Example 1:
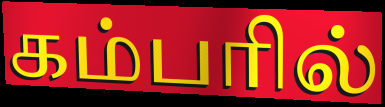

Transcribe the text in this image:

கம்பரில்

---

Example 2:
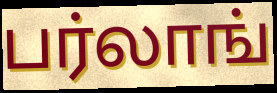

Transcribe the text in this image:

பர்லாங்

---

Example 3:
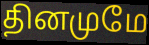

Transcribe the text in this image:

தினமுமே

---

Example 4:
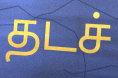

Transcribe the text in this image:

தடச்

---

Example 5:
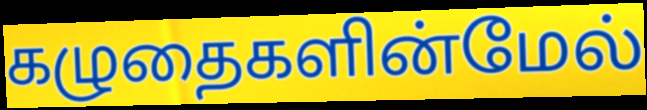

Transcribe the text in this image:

கழுதைகளின்மேல்